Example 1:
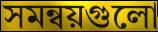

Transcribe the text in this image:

সমন্বয়গুলো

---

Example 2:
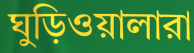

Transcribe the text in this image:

ঘুড়িওয়ালারা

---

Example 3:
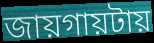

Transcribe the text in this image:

জায়গায়টায়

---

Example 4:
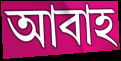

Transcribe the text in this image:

আবাহ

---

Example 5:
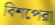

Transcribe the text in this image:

বিশপেরা